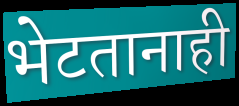
भेटतानाही